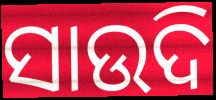
ସାଉଦି